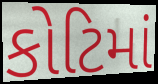
કોટિમાં